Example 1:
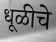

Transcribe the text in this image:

धूळीचे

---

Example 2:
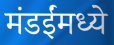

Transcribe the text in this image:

मंडईंमध्ये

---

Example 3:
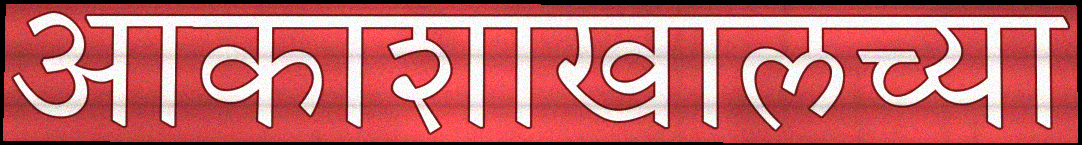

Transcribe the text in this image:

आकाशाखालच्या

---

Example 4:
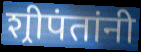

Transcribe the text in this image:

श्रीपंतांनी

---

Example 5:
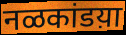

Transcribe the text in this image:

नळकांडय़ा